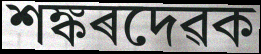
শঙ্কৰদেৱক